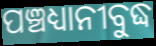
ପଞ୍ଚଧ୍ୟାନୀବୁଦ୍ଧ